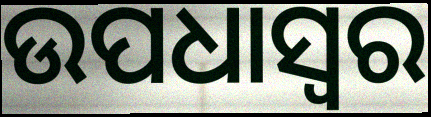
ଉପଧାସ୍ୱର